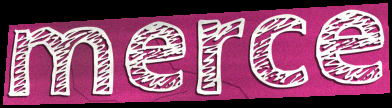
merce